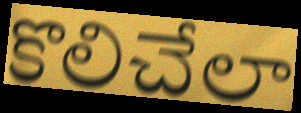
కొలిచేలా